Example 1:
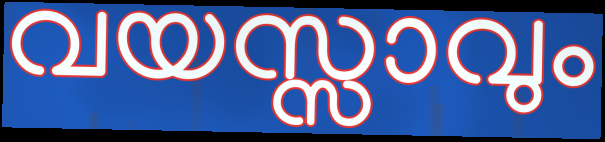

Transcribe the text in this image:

വയസ്സാവും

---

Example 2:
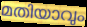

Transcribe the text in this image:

മതിയാവും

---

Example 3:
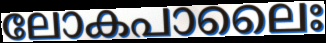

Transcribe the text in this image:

ലോകപാലൈഃ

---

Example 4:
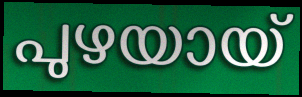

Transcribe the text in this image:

പുഴയായ്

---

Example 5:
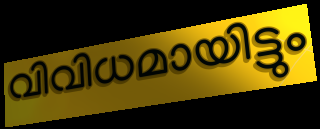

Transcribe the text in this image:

വിവിധമായിട്ടും